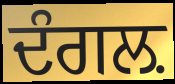
ਦੰਗਲ਼